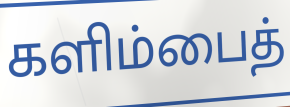
களிம்பைத்